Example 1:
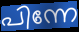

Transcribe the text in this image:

പിന്നേ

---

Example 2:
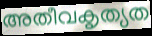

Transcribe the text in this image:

അതീവകൃത്യത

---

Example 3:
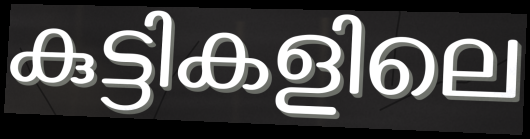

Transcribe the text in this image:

കുട്ടികളിലെ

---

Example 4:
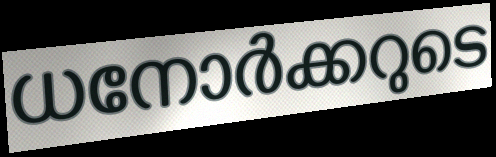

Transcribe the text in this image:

ധനോർക്കറുടെ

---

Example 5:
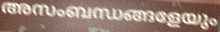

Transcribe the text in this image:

അസംബന്ധങ്ങളേയും